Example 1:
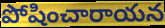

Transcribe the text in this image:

పోషించారాయన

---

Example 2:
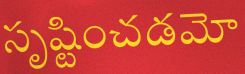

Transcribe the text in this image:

సృష్టించడమో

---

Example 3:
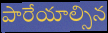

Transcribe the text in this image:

పారేయాల్సిన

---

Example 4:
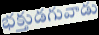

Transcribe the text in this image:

భక్తుడగువాడు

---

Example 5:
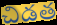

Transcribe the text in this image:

చిడత